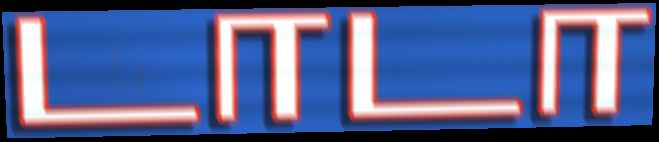
டாடா